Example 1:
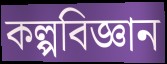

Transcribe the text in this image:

কল্পবিজ্ঞান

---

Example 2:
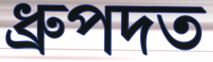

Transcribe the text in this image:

ধ্ৰুপদত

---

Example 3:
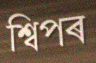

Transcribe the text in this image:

শ্বিপৰ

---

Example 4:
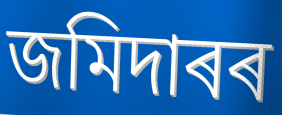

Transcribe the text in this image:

জমিদাৰৰ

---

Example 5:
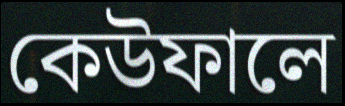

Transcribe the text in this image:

কেউফালে